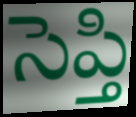
సెప్తి